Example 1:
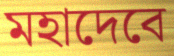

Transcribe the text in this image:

মহাদেবে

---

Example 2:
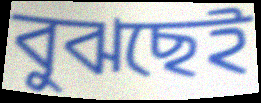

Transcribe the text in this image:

বুঝছেই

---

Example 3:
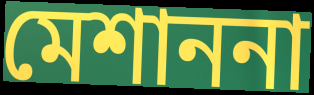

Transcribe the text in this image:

মেশাননা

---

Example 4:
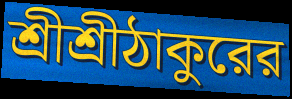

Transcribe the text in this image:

শ্রীশ্রীঠাকুরের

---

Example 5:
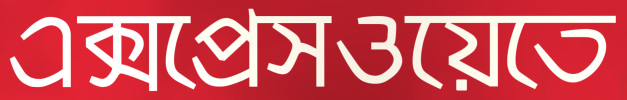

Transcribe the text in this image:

এক্সপ্রেসওয়েতে